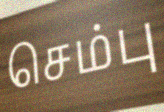
செம்பு